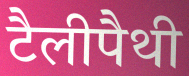
टैलीपैथी